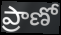
ప్రాణో